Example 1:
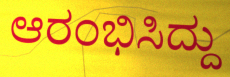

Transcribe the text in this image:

ಆರಂಭಿಸಿದ್ದು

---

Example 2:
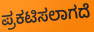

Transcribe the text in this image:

ಪ್ರಕಟಿಸಲಾಗದೆ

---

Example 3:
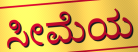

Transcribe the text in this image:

ಸೀಮೆಯ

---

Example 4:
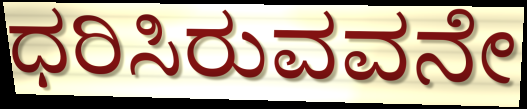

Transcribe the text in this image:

ಧರಿಸಿರುವವನೇ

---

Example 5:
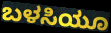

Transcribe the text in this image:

ಬಳಸಿಯೂ